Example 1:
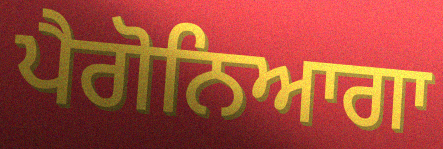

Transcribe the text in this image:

ਪੈਗੋਨਿਆਗਾ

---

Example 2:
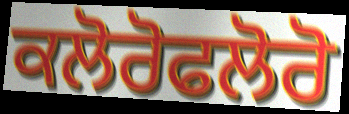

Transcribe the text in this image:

ਕਲੋਰੋਫਲੋਰੋ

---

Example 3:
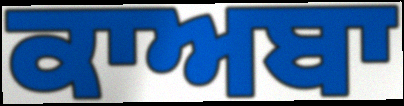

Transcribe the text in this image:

ਕਾਅਬਾ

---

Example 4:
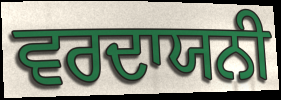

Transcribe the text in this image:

ਵਰਦਾਯਨੀ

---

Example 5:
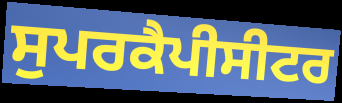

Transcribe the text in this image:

ਸੁਪਰਕੈਪੀਸੀਟਰ